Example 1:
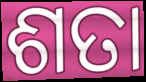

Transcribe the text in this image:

ଶତା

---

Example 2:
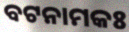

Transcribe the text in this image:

ବଟନାମକଃ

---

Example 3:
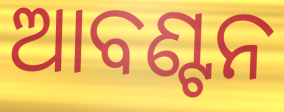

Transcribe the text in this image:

ଆବଣ୍ଟନ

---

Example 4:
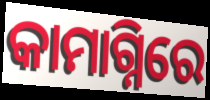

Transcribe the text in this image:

କାମାଗ୍ନିରେ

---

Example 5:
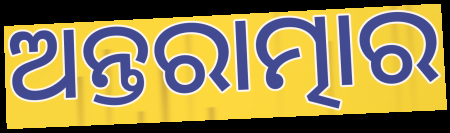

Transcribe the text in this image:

ଅନ୍ତରାତ୍ମାର